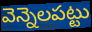
వెన్నెలపట్టు